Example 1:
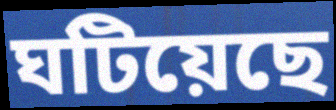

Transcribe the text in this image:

ঘটিয়েছে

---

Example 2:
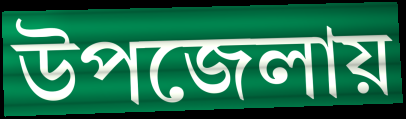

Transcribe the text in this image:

উপজেলায়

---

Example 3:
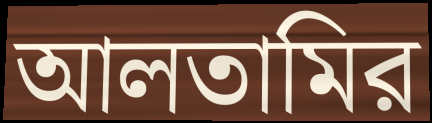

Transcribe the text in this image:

আলতামির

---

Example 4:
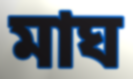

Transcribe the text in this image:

মাঘ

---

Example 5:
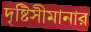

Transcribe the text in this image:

দৃষ্টিসীমানার